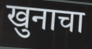
खुनाचा